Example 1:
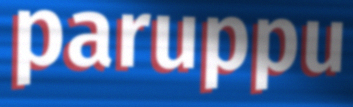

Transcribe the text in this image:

paruppu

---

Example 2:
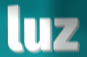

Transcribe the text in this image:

luz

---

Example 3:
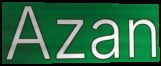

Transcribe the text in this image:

Azan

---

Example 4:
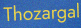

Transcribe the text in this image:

Thozargal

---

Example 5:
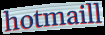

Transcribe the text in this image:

hotmaill